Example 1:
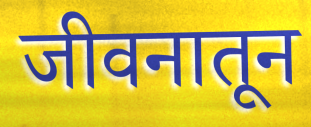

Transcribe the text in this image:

जीवनातून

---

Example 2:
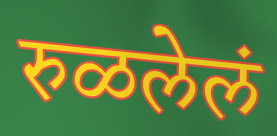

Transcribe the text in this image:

रुळलेलं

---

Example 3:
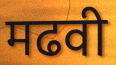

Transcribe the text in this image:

मढवी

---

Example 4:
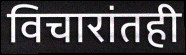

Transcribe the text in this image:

विचारांतही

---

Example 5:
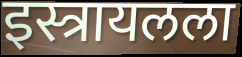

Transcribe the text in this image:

इस्त्रायलला